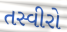
તસ્વીરો